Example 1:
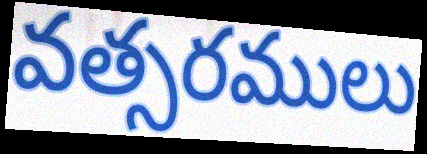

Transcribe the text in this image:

వత్సరములు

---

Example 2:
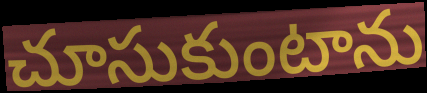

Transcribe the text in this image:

చూసుకుంటాను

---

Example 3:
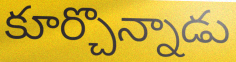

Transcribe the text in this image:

కూర్చొన్నాడు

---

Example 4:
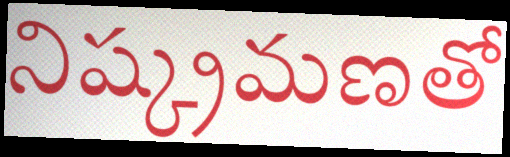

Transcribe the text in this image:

నిష్క్రమణతో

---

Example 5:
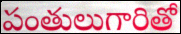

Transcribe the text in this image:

పంతులుగారితో